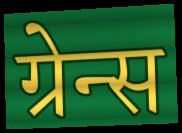
ग्रेन्स